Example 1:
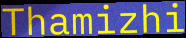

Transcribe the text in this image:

Thamizhi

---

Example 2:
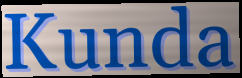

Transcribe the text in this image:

Kunda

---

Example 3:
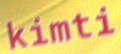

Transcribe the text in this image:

kimti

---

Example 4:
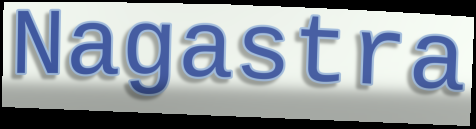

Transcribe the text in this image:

Nagastra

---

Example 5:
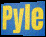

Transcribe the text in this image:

Pyle